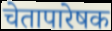
चेतापारेषक